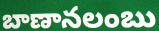
బాణానలంబు